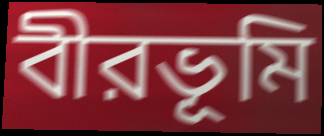
বীরভূমি